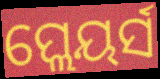
ପ୍ଲେୟର୍ସ